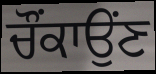
ਚੌਂਕਾਉਂਣ